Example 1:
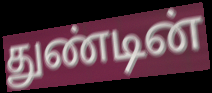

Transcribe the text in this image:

துண்டின்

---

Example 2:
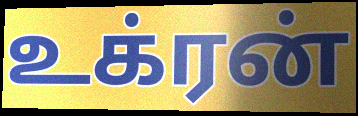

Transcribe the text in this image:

உக்ரன்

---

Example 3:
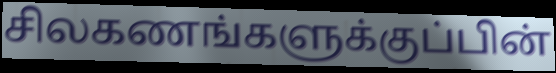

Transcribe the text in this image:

சிலகணங்களுக்குப்பின்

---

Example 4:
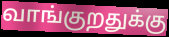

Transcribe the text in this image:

வாங்குறதுக்கு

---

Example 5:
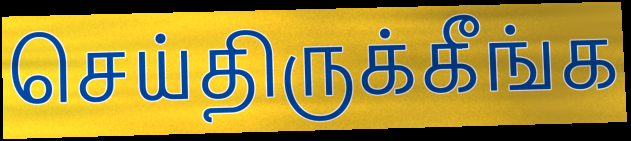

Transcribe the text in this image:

செய்திருக்கீங்க